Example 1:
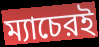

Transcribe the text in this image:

ম্যাচেরই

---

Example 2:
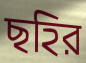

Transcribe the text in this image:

ছহির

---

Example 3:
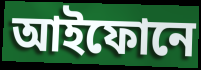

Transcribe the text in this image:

আইফোনে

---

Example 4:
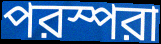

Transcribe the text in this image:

পরস্পরা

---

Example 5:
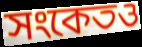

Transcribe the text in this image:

সংকেতও